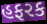
હફરક